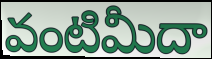
వంటిమీదా